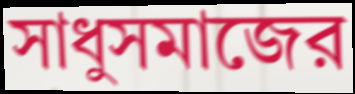
সাধুসমাজের